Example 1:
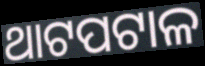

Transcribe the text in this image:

ଥାଟପଟାଳ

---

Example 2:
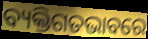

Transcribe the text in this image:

ବ୍ୟକ୍ତିଗତଭାବରେ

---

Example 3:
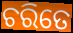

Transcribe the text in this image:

ଚରିତେ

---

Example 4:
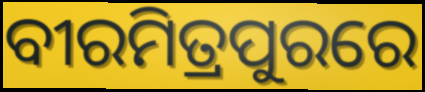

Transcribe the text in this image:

ବୀରମିତ୍ରପୁରରେ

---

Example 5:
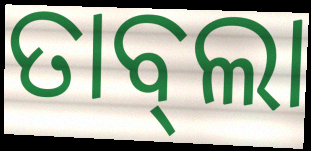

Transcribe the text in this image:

ତାବ୍‌ଲା